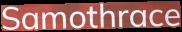
Samothrace